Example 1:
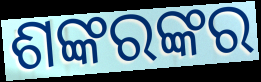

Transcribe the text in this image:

ଶଙ୍କରଙ୍କର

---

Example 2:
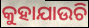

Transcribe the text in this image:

କୁହାଯାଉଚି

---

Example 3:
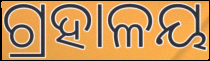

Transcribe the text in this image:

ଗ୍ରହାଳୟ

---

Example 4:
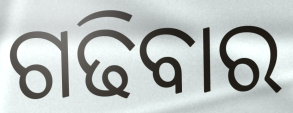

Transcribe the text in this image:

ଗଢିବାର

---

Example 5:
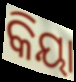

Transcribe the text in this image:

କିୟା